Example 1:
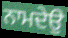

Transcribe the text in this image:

ਨਾਮਦੇਉ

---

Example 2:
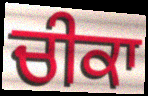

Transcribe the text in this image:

ਚੀਕਾ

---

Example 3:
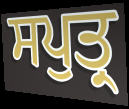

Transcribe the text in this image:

ਸਪੁਤ੍ਰ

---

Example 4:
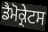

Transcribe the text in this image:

ਡੈਮੋਕ੍ਰੇਟਸ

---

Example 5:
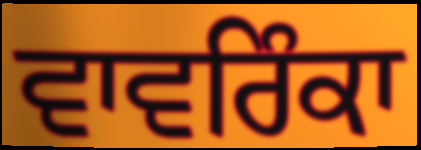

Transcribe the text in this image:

ਵਾਵਰਿੰਕਾ